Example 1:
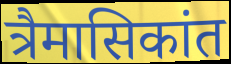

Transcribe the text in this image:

त्रैमासिकांत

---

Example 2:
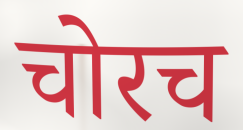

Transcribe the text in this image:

चोरच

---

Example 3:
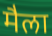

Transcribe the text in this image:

मैला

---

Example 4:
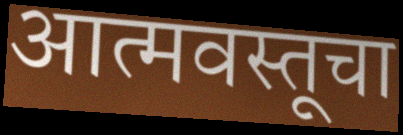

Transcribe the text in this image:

आत्मवस्तूचा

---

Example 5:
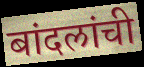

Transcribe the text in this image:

बांदलांची